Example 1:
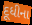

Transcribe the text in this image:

દૂધીના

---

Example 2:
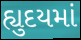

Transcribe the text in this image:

હ્યુદયમાં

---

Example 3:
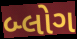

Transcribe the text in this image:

બ્લોગ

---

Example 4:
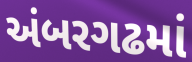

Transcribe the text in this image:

અંબરગઢમાં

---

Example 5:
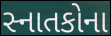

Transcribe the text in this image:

સ્નાતકોના